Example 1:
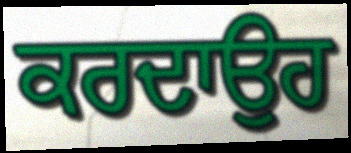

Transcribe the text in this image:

ਕਰਦਾਉਹ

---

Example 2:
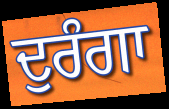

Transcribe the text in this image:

ਦੁਰੰਗਾ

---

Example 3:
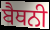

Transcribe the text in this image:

ਬੈਥਨੀ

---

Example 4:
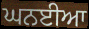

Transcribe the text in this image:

ਘਨਈਆ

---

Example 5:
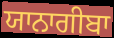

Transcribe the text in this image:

ਯਾਨਾਗੀਬਾ